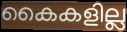
കൈകളില്ല